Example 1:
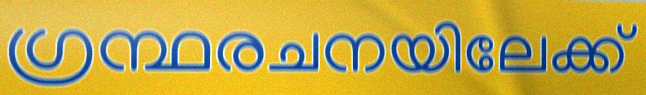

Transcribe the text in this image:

ഗ്രന്ഥരചനയിലേക്ക്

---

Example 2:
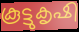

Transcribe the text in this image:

കൂട്ടുകൃഷി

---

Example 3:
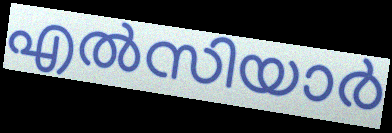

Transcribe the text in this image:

എൽസിയാർ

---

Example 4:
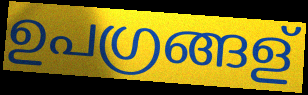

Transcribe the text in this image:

ഉപഗ്രങ്ങള്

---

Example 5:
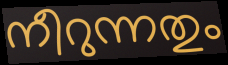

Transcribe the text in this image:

നീറുന്നതും